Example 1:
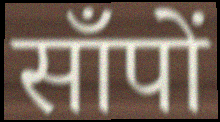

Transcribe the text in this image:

साँपों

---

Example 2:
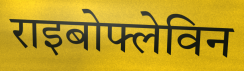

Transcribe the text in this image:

राइबोफ्लेविन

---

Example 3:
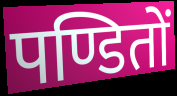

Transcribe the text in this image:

पण्डितों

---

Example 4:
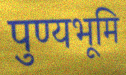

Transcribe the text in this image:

पुण्यभूमि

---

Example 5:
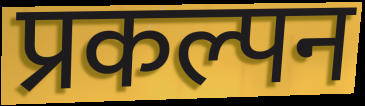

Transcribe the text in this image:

प्रकल्पन